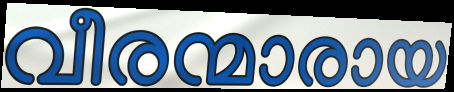
വീരന്മാരായ